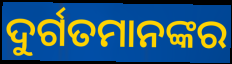
ଦୁର୍ଗତମାନଙ୍କର